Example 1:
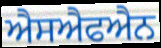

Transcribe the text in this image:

ਐਸਐਫਐਨ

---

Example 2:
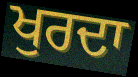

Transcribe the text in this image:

ਖੁਰਦਾ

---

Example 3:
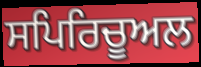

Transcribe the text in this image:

ਸਪਿਰਿਚੂਅਲ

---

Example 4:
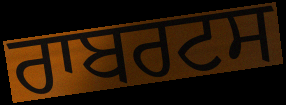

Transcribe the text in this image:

ਰਾਬਰਟਸ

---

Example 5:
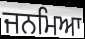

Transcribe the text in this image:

ਜਨਮਿਆ